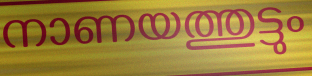
നാണയത്തുട്ടും